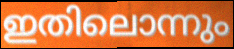
ഇതിലൊന്നും